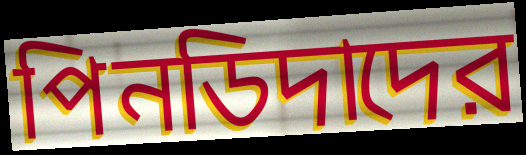
পিনডিদাদের